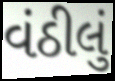
વંઠીલું